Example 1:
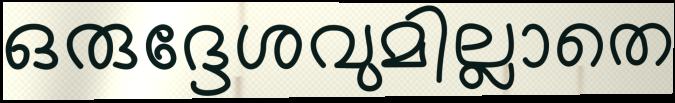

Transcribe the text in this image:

ഒരുദ്ദേശവുമില്ലാതെ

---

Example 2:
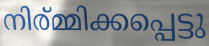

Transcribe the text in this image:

നിര്മ്മിക്കപ്പെട്ടു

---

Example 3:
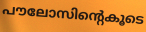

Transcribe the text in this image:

പൗലോസിന്റെകൂടെ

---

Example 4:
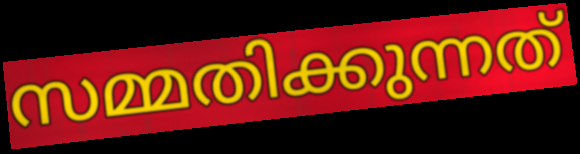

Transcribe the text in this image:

സമ്മതിക്കുന്നത്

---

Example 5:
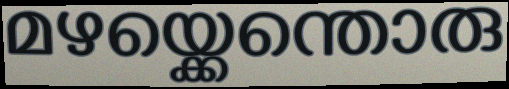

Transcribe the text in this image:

മഴയ്ക്കെന്തൊരു